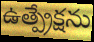
ఉత్ప్రేక్షను